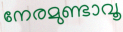
നേരമുണ്ടാവൂ